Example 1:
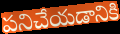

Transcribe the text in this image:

పనిచేయడానికి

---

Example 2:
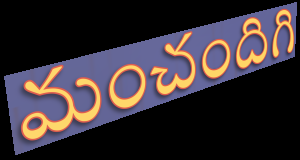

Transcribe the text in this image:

మంచందిగి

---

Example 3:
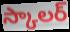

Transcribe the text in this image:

స్కాలర్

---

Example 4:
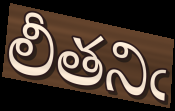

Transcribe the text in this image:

లీతనిఁ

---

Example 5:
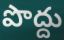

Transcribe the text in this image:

పొద్దు